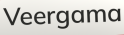
Veergama